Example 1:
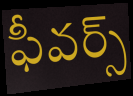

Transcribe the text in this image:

ఫీవర్స్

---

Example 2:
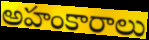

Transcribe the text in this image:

అహంకారాలు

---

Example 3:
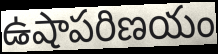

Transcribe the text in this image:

ఉషాపరిణయం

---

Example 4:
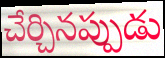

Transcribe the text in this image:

చేర్చినప్పుడు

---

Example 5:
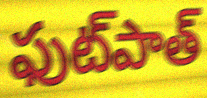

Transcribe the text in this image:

ఫుట్‌పాత్